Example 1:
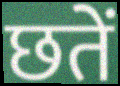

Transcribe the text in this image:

छतें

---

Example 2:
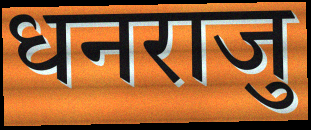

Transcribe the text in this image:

धनराजु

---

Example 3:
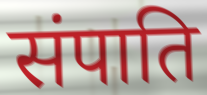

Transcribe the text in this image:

संपाति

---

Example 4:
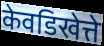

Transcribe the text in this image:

केवडिखेत्ते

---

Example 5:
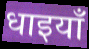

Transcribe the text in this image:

धाइयाँ